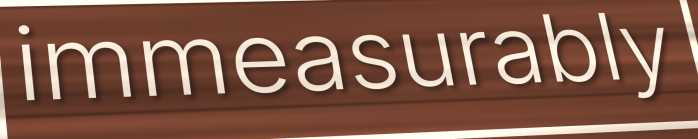
immeasurably